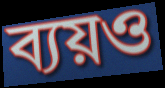
ব্যয়ও